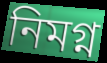
নিমগ্ন